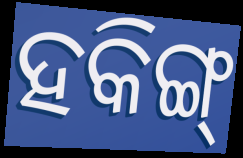
ହକିଙ୍ଗ୍